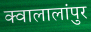
क्वालालांपुर